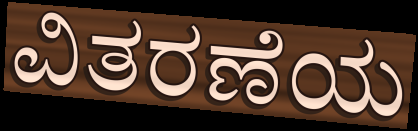
ವಿತರಣೆಯ